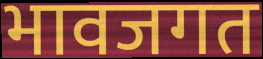
भावजगत